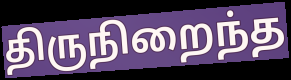
திருநிறைந்த